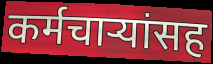
कर्मचाऱ्यांसह